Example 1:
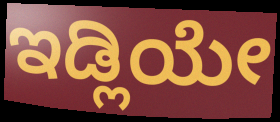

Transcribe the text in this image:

ಇಡ್ಲಿಯೇ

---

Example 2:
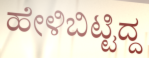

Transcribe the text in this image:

ಹೇಳಿಬಿಟ್ಟಿದ್ದ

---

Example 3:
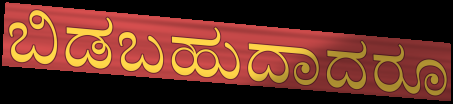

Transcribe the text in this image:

ಬಿಡಬಹುದಾದರೂ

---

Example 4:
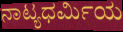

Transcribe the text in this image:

ನಾಟ್ಯಧರ್ಮಿಯ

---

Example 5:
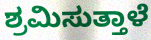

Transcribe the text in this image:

ಶ್ರಮಿಸುತ್ತಾಳೆ